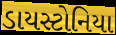
ડાયસ્ટોનિયા